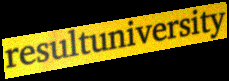
resultuniversity